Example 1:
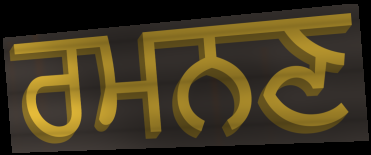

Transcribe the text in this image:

ਰਮਨਣ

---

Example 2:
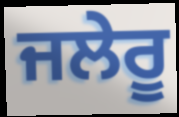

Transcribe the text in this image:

ਜਲੇਰੂ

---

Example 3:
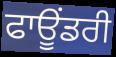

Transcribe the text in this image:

ਫਾਊਂਡਰੀ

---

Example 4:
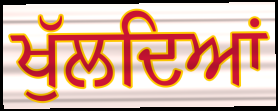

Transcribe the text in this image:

ਖੁੱਲਦਿਆਂ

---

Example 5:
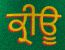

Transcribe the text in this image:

ਕ੍ਰੀਊ